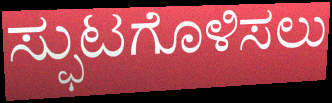
ಸ್ಫುಟಗೊಳಿಸಲು